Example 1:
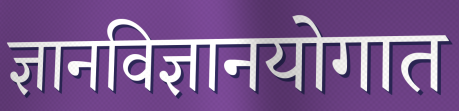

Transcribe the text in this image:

ज्ञानविज्ञानयोगात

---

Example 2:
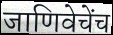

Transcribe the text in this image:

जाणिवेचेंच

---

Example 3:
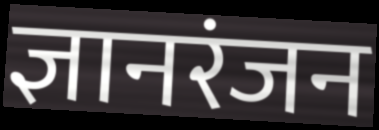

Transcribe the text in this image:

ज्ञानरंजन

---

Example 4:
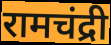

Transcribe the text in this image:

रामचंद्री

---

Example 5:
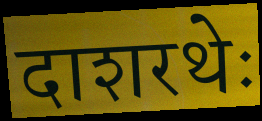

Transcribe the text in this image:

दाशरथेः